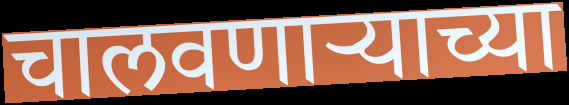
चालवणार्‍याच्या